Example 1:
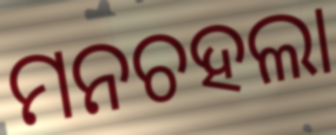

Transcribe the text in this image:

ମନଚହଲା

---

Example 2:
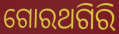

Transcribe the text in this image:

ଗୋରଥଗିରି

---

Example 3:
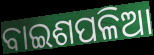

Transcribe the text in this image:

ବାଇଶପଳିଆ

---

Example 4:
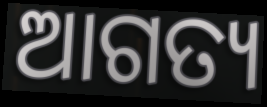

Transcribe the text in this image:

ଆଗତ୍ୟ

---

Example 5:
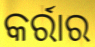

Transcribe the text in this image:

କର୍ରାର